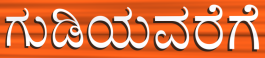
ಗುಡಿಯವರೆಗೆ